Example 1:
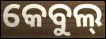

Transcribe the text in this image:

କେବୁଲ୍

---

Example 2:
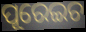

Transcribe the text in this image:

ପୂରେଇଚ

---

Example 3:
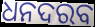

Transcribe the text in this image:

ଧନଦରବ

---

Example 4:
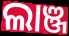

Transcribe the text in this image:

ଲାଞ୍ଜ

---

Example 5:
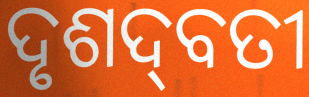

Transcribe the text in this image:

ଦୃଶଦ୍‌ବତୀ